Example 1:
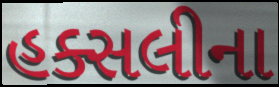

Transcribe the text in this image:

હક્સલીના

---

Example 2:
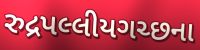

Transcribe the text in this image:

રુદ્રપલ્લીયગચ્છના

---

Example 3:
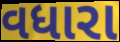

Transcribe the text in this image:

વધારા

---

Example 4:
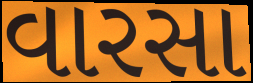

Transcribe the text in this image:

વારસા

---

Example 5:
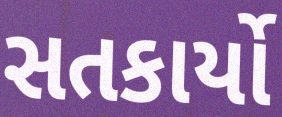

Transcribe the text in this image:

સતકાર્યો